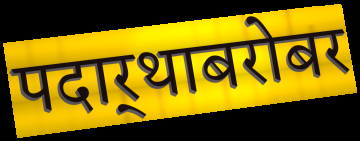
पदार्थाबरोबर